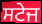
ਸਟੇਜ